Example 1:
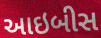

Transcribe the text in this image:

આઇબીસ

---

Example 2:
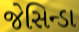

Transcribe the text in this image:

જેસિન્ડા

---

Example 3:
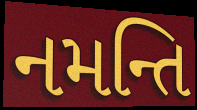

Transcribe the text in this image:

નમન્તિ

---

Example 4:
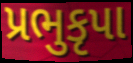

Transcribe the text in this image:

પ્રભુકૃપા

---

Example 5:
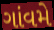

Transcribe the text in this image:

ગાંવમે